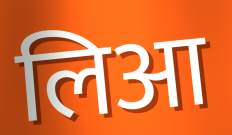
लिआ